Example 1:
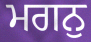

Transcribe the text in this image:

ਮਗਨੁ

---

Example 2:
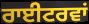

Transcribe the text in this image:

ਰਾਈਟਰਵਾਂ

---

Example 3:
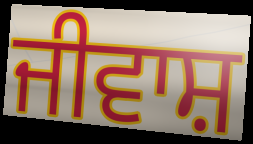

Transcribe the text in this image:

ਜੀਵਾਸ਼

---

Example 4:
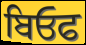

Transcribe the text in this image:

ਬਿਓਫ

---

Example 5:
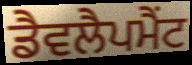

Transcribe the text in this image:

ਡੈਵਲੈਪਮੈਂਟ